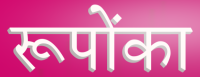
रूपोंका